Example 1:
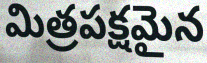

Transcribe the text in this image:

మిత్రపక్షమైన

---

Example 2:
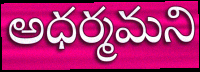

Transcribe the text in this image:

అధర్మమని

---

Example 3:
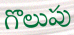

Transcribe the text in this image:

గొలుపు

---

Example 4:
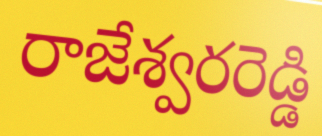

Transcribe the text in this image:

రాజేశ్వరరెడ్డి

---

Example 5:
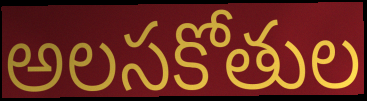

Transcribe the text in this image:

అలసకోతుల